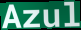
Azul